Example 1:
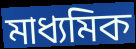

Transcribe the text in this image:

মাধ্যমিক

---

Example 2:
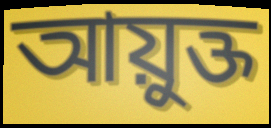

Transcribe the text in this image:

আয়ুক্ত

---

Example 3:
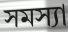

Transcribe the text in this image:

সমস্যা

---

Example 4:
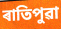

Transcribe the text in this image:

ৰাতিপুৱা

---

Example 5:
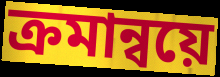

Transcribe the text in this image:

ক্ৰমান্বয়ে